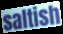
saltish